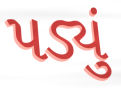
પડ્યું